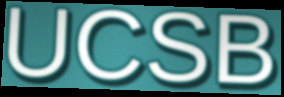
UCSB